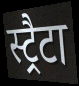
स्ट्रैटा